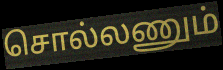
சொல்லணும்